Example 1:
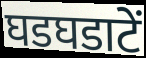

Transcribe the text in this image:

घडघडाटें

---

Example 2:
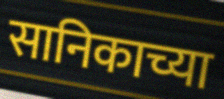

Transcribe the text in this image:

सानिकाच्या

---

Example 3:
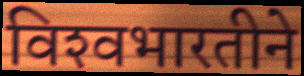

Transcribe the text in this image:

विश्वभारतीने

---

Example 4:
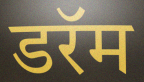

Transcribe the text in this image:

डरॅम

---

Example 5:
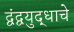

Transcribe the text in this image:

द्वंद्वयुद्धाचे